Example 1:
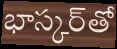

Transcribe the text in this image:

భాస్కర్‌తో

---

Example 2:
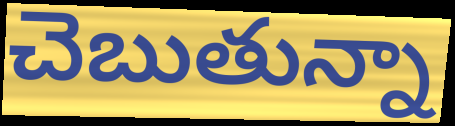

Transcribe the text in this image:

చెబుతున్నా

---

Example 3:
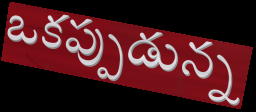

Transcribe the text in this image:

ఒకప్పుడున్న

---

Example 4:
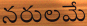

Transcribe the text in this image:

నరులమే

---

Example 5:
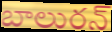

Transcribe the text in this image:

బాలురన్